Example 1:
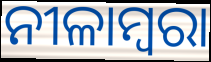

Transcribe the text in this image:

ନୀଳାମ୍ବରା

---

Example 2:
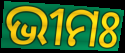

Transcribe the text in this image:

ଭୀମଃ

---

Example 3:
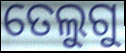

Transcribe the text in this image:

ତେଲୁଗୁ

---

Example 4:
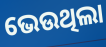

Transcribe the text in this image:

ଭେଉଥିଲା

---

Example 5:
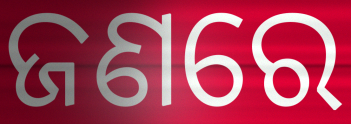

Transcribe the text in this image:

ଜଣରେ